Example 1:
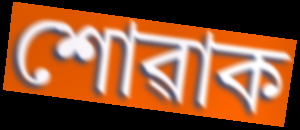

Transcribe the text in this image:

শোৱাক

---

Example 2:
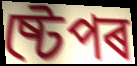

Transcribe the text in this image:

ষ্টেপৰ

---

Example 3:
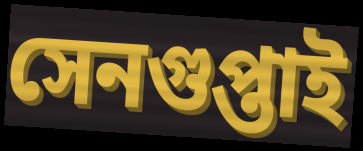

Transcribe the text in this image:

সেনগুপ্তাই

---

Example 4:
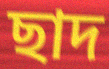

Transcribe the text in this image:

ছাদ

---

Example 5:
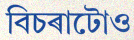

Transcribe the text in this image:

বিচৰাটোও